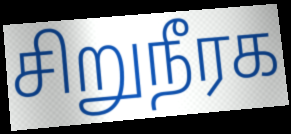
சிறுநீரக